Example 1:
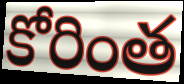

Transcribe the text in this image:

కోరింత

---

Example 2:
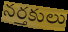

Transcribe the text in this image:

నర్తకులు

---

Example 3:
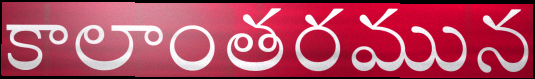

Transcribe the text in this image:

కాలాంతరమున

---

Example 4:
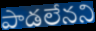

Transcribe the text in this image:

పాడలేనని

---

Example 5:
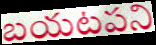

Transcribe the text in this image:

బయటపని